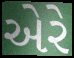
એરે